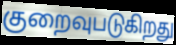
குறைவுபடுகிறது